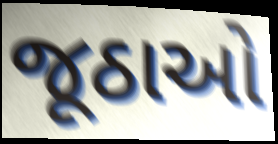
જૂઠાઓ